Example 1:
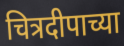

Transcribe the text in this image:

चित्रदीपाच्या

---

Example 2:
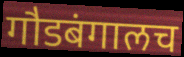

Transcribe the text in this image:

गौडबंगालच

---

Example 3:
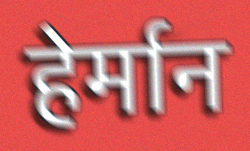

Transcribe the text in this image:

हेर्मान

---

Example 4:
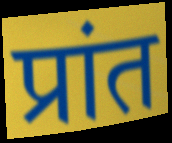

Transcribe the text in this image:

प्रांत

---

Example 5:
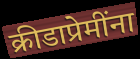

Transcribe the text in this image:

क्रीडाप्रेमींना